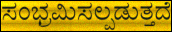
ಸಂಭ್ರಮಿಸಲ್ಪಡುತ್ತದೆ